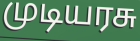
முடியரசு